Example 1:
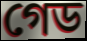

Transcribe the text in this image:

গেড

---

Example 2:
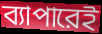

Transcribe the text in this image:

ব্যাপারেই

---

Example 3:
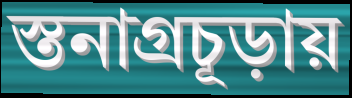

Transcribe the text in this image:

স্তনাগ্রচূড়ায়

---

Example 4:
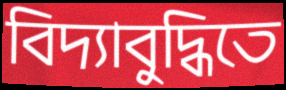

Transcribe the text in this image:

বিদ্যাবুদ্ধিতে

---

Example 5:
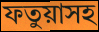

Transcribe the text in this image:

ফতুয়াসহ